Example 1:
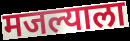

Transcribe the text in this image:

मजल्याला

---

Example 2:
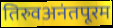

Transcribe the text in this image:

तिरुवअनंतपूरम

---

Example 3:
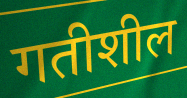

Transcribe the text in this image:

गतीशील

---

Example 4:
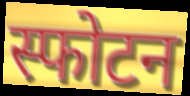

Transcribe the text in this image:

स्फोटन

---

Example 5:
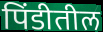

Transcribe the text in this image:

पिंडीतील